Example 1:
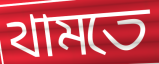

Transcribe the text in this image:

থামতে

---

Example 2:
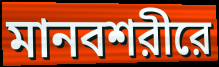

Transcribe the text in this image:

মানবশরীরে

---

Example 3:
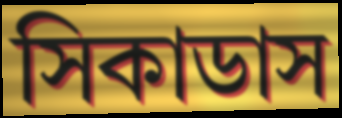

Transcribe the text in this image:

সিকাডাস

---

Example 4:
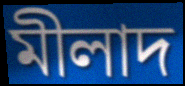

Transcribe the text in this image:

মীলাদ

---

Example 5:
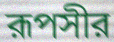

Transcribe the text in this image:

রূপসীর